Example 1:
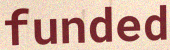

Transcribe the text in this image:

funded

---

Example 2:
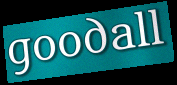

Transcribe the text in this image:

goodall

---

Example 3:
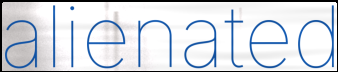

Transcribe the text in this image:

alienated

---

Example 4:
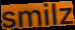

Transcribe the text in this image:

smilz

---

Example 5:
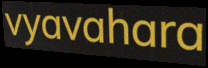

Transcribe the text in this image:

vyavahara